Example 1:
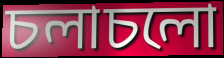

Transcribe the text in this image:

চলাচলো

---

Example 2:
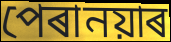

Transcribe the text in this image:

পেৰানয়াৰ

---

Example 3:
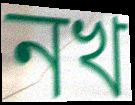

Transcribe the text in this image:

নখ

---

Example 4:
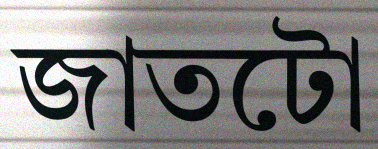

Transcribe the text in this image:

জাতটো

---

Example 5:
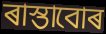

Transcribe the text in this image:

ৰাস্তাবোৰ